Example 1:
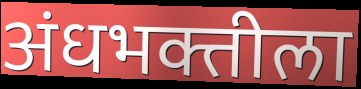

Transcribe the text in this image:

अंधभक्तीला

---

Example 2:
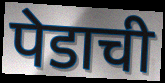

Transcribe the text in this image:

पेडाची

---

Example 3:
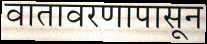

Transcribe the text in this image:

वातावरणापासून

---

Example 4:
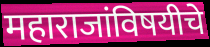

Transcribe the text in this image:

महाराजांविषयीचे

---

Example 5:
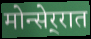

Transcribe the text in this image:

मोन्सेर्रात